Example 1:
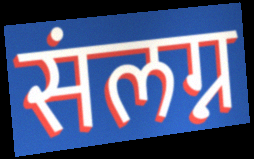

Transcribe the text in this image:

संलग्न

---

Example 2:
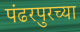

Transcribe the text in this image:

पंढरपुरच्या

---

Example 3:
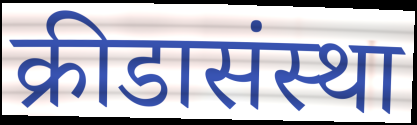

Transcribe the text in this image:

क्रीडासंस्था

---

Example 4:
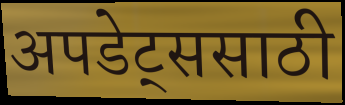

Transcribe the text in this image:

अपडेट्ससाठी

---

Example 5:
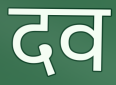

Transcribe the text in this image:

दव